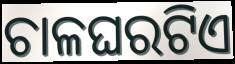
ଚାଳଘରଟିଏ